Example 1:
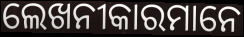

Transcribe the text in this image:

ଲେଖନୀକାରମାନେ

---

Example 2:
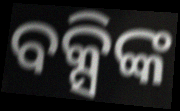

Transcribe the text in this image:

ବକ୍ସିଙ୍କ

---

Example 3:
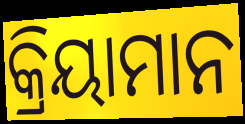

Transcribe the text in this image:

କ୍ରିୟାମାନ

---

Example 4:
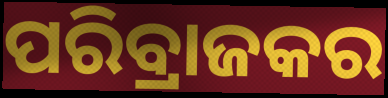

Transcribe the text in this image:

ପରିବ୍ରାଜକର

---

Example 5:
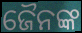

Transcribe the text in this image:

ଜୈନଙ୍କ